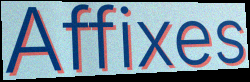
Affixes